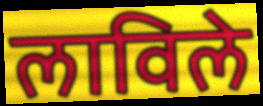
लाविले